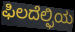
ಫಿಲದೆಲ್ಫಿಯ